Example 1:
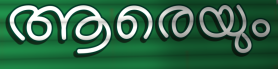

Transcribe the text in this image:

ആരെയും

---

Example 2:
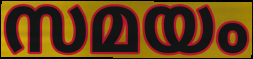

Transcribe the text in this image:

സമയം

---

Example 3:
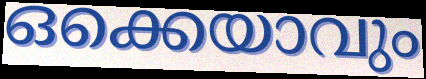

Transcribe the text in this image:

ഒക്കെയാവും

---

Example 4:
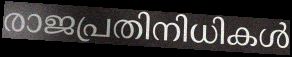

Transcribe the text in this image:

രാജപ്രതിനിധികൾ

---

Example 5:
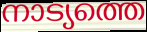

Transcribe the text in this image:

നാട്യത്തെ